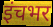
इंचभर